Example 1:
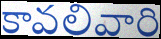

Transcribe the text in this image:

కావలివారి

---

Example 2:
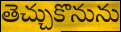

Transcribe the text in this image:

తెచ్చుకొనును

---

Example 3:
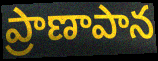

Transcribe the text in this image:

ప్రాణాపాన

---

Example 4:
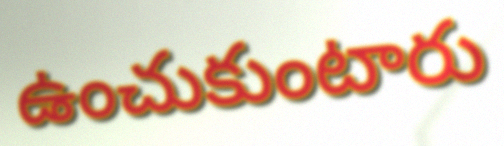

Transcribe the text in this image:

ఉంచుకుంటారు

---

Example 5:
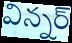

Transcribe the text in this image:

విన్నర్